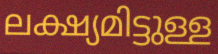
ലക്ഷ്യമിട്ടുള്ള